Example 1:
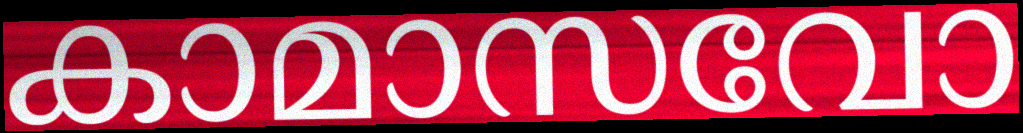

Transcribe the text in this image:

കാമാസവോ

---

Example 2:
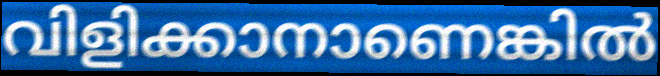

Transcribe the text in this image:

വിളിക്കാനാണെങ്കിൽ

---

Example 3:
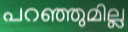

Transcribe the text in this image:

പറഞ്ഞുമില്ല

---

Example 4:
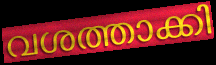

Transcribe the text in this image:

വശത്താക്കി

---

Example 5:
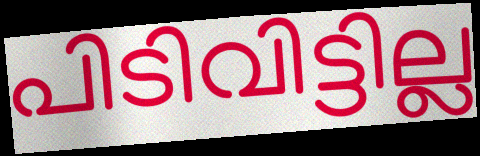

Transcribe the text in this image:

പിടിവിട്ടില്ല